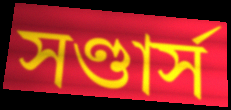
সণ্ডার্স